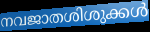
നവജാതശിശുക്കൾ